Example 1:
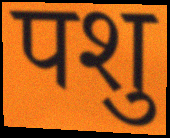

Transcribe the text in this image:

पशु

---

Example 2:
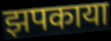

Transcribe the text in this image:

झपकाया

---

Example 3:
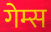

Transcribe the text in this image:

गेम्स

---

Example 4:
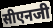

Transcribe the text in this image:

सीएनजी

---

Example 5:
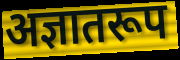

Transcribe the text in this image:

अज्ञातरूप